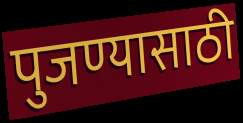
पुजण्यासाठी